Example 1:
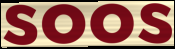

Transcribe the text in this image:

soos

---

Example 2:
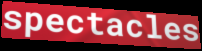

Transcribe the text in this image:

spectacles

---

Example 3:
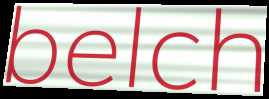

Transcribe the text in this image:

belch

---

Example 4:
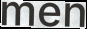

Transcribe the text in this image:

men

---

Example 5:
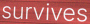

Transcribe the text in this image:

survives